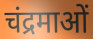
चंद्रमाओं